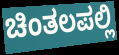
ಚಿಂತಲಪಲ್ಲಿ